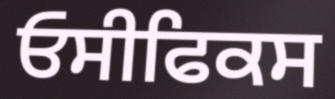
ਓਸੀਫਿਕਸ